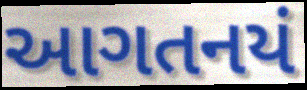
આગતનયં